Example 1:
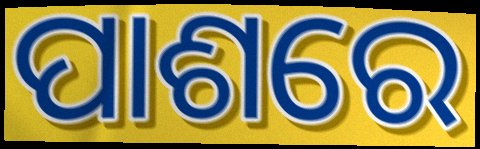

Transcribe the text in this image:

ପାଶରେ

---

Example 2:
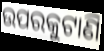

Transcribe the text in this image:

ଉପରକୁଟାଣି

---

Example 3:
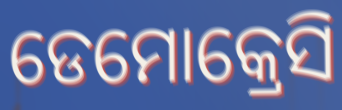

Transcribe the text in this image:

ଡେମୋକ୍ରେସି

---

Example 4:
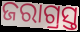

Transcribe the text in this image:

ଜରାଗ୍ରସ୍ତ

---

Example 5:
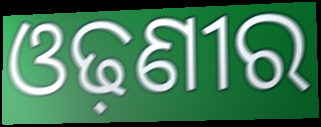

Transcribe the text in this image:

ଓଢ଼ଣୀର